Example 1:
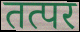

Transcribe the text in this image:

तत्पर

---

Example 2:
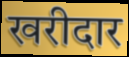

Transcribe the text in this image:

खरीदार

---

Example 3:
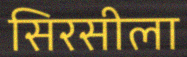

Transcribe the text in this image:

सिरसीला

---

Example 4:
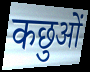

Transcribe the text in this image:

कछुओं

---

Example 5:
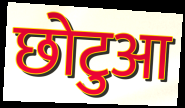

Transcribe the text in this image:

छोटुआ